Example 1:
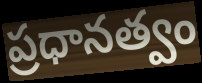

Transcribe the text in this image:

ప్రధానత్వం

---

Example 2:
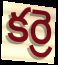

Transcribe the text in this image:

కర్రె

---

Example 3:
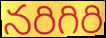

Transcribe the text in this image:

నరిగిరి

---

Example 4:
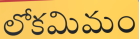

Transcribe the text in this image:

లోకమిమం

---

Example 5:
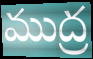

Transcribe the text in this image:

ముద్ర